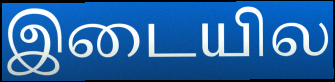
இடையில